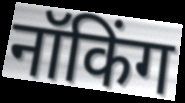
नॉकिंग